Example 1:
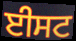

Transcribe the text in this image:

ਈਸਟ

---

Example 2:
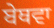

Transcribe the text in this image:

ਬੇਥਵਾ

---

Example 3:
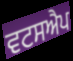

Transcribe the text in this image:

ਵਟਸਐਪ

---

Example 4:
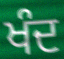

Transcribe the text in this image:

ਖੰਦ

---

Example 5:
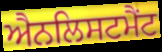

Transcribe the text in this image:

ਐਨਲਿਸਟਮੈਂਟ